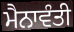
ਮੈਨਾਵੰਤੀ